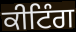
ਕੀਟਿੰਗ